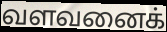
வளவனைக்